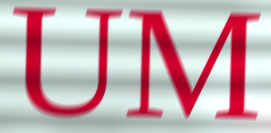
UM